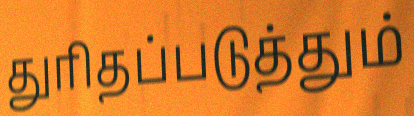
துரிதப்படுத்தும்